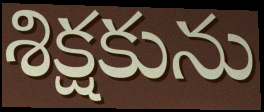
శిక్షకును